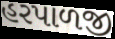
હરપાળજી